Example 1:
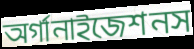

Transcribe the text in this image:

অর্গানাইজেশনস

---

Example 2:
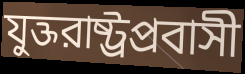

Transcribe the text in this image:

যুক্তরাষ্ট্রপ্রবাসী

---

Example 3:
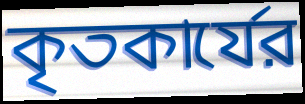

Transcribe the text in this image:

কৃতকার্যের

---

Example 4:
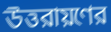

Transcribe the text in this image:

উত্তরায়ণের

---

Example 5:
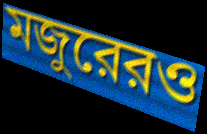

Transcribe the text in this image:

মজুরেরও